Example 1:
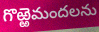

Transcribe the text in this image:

గొఱ్ఱెమందలను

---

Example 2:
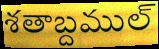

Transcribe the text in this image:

శతాబ్దముల్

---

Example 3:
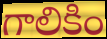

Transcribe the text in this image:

గాలికిం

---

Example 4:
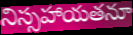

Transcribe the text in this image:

నిస్సహాయతనూ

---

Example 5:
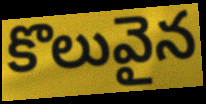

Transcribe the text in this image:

కొలువైన